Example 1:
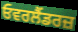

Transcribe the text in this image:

ਓਵਰਲੈਂਡਰਜ਼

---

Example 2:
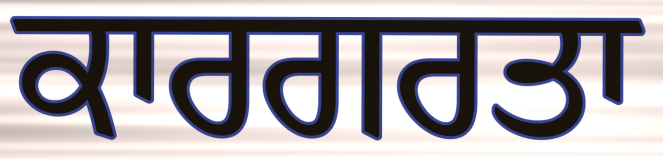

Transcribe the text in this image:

ਕਾਰਗਰਤਾ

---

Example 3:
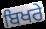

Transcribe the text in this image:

ਬਿਖਰੇ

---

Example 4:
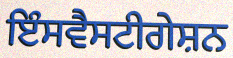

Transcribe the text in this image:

ਇੰਸਵੈਸਟੀਗੇਸ਼ਨ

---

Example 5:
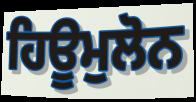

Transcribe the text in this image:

ਹਿਊਮੁਲੋਨ